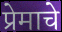
प्रेमाचे